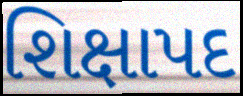
શિક્ષાપદ